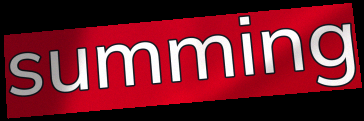
summing